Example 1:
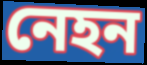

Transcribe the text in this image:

নেহন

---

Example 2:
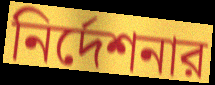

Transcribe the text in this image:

নির্দেশনার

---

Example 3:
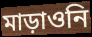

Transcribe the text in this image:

মাড়াওনি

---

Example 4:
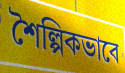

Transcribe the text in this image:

শৈল্পিকভাবে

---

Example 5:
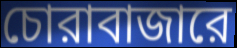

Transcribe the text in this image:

চোরাবাজারে